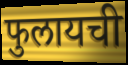
फुलायची